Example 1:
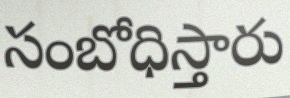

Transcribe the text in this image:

సంబోధిస్తారు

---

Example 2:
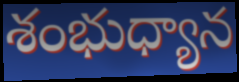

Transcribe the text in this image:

శంభుధ్యాన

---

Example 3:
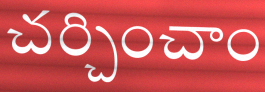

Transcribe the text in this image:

చర్చించాం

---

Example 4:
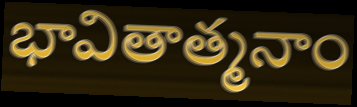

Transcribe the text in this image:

భావితాత్మనాం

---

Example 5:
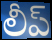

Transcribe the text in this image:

లీప్